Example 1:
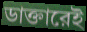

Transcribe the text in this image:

ডাক্তারেই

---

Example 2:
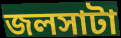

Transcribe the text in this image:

জলসাটা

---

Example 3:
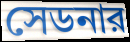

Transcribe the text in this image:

সেডনার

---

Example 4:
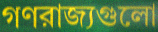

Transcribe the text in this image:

গণরাজ্যগুলো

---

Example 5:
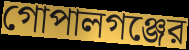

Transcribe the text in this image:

গোপালগঞ্জের